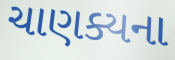
ચાણક્યના